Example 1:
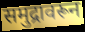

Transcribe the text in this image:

समुद्रावरून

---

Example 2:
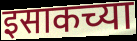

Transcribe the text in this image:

इसाकच्या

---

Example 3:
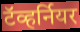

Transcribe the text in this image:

टॅव्हर्नियर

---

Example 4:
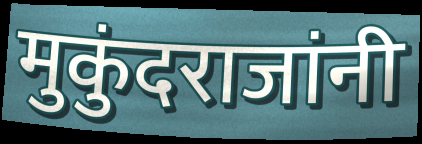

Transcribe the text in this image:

मुकुंदराजांनी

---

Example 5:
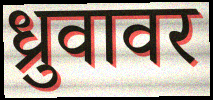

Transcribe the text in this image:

ध्रुवावर